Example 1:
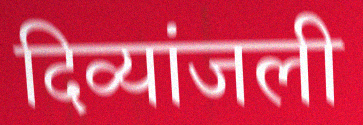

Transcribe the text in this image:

दिव्यांजली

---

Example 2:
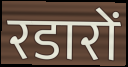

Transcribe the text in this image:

रडारों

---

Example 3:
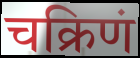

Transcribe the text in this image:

चक्रिणं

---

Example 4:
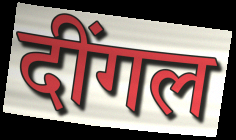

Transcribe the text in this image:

दींगल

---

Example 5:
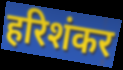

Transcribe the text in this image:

हरिशंकर